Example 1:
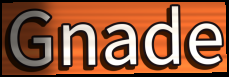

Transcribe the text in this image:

Gnade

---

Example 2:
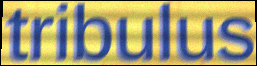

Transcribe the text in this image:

tribulus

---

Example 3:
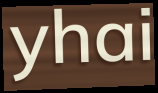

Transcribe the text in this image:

yhai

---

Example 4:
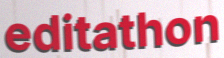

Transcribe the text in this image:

editathon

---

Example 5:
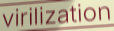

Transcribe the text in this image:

virilization